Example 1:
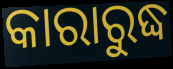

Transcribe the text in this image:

କାରାରୁଦ୍ଧ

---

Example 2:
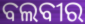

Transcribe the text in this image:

ବଲବୀର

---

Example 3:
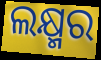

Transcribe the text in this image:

ଲକ୍ଷ୍ମର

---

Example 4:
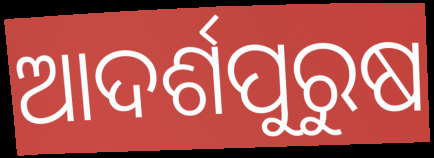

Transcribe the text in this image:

ଆଦର୍ଶପୁରୁଷ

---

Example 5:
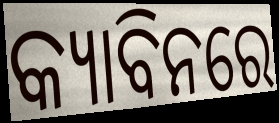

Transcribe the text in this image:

କ୍ୟାବିନରେ